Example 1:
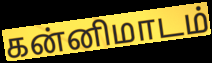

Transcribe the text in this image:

கன்னிமாடம்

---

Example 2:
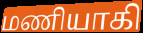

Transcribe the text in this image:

மணியாகி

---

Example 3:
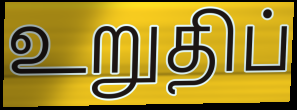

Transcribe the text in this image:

உறுதிப்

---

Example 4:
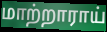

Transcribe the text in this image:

மாற்றாராய்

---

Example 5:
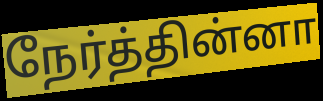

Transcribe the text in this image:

நேர்த்தின்னா